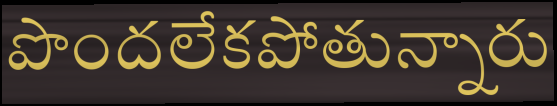
పొందలేకపోతున్నారు